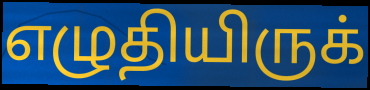
எழுதியிருக்